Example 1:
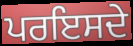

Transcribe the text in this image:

ਪਰਇਸਦੇ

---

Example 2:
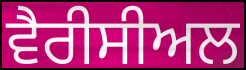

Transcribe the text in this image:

ਵੈਰੀਸੀਅਲ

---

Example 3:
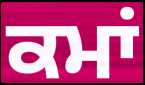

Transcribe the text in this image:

ਕਮਾਂ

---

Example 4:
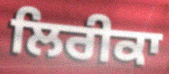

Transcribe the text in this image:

ਲਿਰੀਕਾ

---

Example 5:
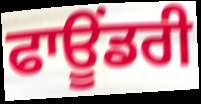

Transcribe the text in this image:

ਫਾਊਂਡਰੀ